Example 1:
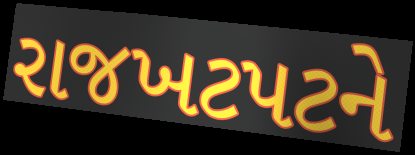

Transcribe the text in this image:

રાજખટપટને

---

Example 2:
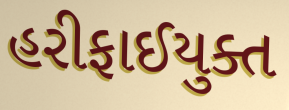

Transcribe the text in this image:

હરીફાઈયુક્ત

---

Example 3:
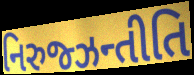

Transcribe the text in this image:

નિરુજ્ઝન્તીતિ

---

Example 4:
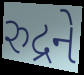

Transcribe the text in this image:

રુદ્રને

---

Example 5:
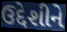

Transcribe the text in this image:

ઉદ્દેશીને